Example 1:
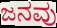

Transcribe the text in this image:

ಜನವು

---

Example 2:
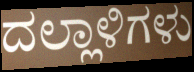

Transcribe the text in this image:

ದಲ್ಲಾಳಿಗಳು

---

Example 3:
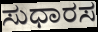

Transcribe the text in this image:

ಸುಧಾರಸ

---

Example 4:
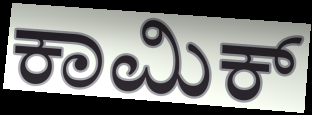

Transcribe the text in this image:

ಕಾಮಿಕ್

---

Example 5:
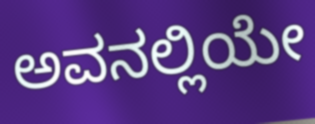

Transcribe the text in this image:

ಅವನಲ್ಲಿಯೇ